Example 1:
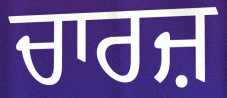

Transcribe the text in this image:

ਚਾਰਜ਼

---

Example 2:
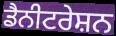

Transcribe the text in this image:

ਡੈਨੀਟਰੇਸ਼ਨ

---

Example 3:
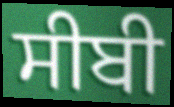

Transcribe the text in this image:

ਸੀਬੀ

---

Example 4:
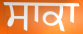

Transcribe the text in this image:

ਸਾਕਾ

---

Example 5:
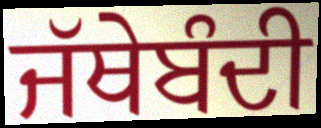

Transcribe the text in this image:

ਜੱਥੇਬੰਦੀ